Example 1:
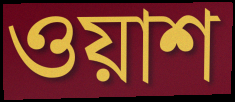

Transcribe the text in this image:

ওয়াশ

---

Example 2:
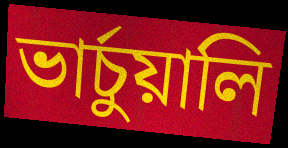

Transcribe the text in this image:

ভার্চুয়ালি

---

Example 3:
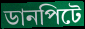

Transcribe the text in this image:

ডানপিটে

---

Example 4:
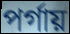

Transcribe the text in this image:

পর্গায়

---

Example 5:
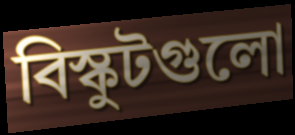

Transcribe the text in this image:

বিস্কুটগুলো